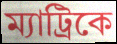
ম্যাট্রিকে